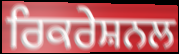
ਰਿਕਰੇਸ਼ਨਲ